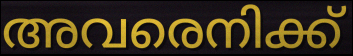
അവരെനിക്ക്